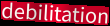
debilitation